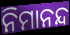
ନିମାନନ୍ଦ